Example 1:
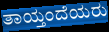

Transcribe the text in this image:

ತಾಯ್ತಂದೆಯರು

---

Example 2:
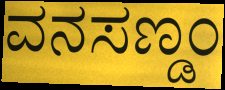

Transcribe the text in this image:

ವನಸಣ್ಡಂ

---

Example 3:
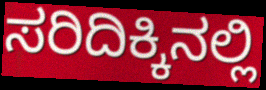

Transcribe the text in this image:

ಸರಿದಿಕ್ಕಿನಲ್ಲಿ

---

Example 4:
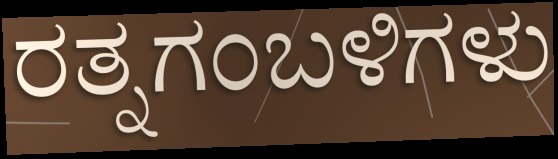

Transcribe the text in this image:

ರತ್ನಗಂಬಳಿಗಳು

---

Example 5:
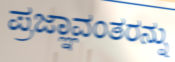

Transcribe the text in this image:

ಪ್ರಜ್ಞಾವಂತರನ್ನು